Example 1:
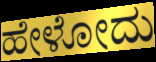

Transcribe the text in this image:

ಹೇಳೋದು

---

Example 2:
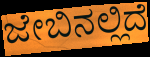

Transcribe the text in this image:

ಜೇಬಿನಲ್ಲಿದೆ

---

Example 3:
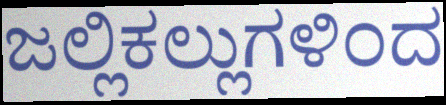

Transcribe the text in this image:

ಜಲ್ಲಿಕಲ್ಲುಗಳಿಂದ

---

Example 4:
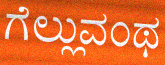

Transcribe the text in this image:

ಗೆಲ್ಲುವಂಥ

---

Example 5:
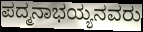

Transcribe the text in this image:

ಪದ್ಮನಾಭಯ್ಯನವರು